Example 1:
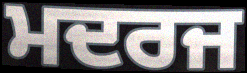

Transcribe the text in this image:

ਮਦਰਜ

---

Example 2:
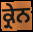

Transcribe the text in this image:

ਕ੍ਰੇਨ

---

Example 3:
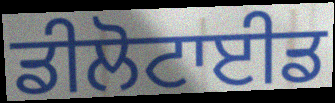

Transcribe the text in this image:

ਡੀਲੋਟਾਈਡ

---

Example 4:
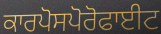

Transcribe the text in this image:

ਕਾਰਪੋਸਪੋਰੋਫਾਈਟ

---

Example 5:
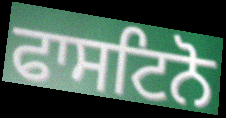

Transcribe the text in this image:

ਫਾਸਟਿਨੋ